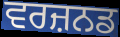
ਵਰਜ਼ਨਡ